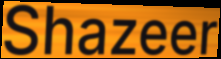
Shazeer